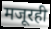
मजूरही